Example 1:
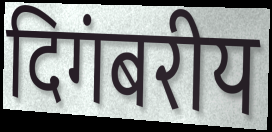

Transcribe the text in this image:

दिगंबरीय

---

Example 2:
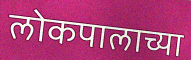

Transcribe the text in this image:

लोकपालाच्या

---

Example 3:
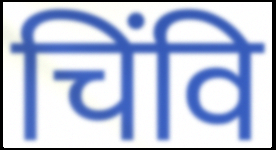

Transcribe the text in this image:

चिंवि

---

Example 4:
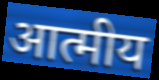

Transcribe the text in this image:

आत्मीय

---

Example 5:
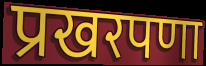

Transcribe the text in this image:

प्रखरपणा